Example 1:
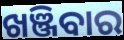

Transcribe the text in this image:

ଖଞ୍ଜିବାର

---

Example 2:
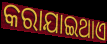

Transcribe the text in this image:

କରାଯାଇଥାଏ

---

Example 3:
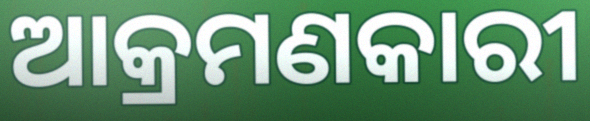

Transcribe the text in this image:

ଆକ୍ରମଣକାରୀ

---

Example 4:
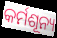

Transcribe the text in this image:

କର୍ମଶୂନ୍ୟ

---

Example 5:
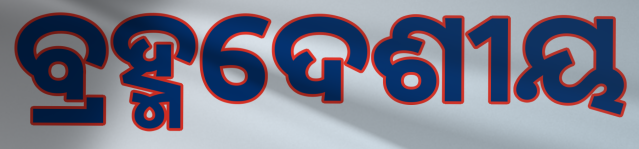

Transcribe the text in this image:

ବ୍ରହ୍ମଦେଶୀୟ